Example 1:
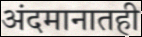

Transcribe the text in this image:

अंदमानातही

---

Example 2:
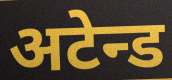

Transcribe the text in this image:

अटेन्ड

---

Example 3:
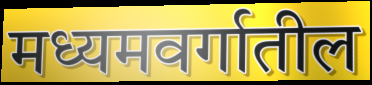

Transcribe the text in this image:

मध्यमवर्गातील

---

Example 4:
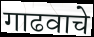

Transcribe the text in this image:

गाढवाचे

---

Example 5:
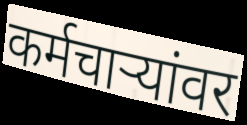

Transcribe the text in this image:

कर्मचार्‍यांवर